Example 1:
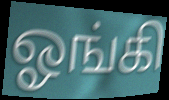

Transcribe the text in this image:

ஓங்கி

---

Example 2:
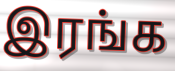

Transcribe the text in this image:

இரங்க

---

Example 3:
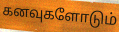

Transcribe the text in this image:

கனவுகளோடும்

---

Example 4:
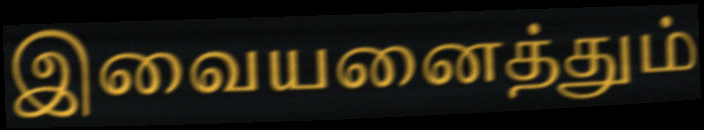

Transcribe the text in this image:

இவையனைத்தும்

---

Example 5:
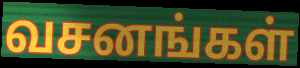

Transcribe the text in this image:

வசனங்கள்